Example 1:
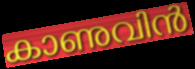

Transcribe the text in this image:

കാണുവിൻ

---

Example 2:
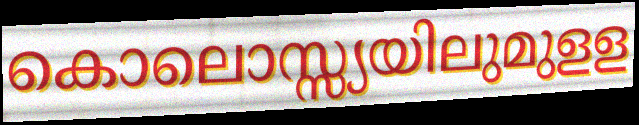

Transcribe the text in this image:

കൊലൊസ്സ്യയിലുമുളള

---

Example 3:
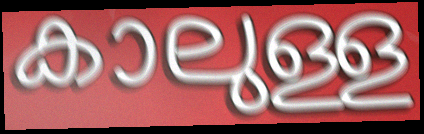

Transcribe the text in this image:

കാലുള്ള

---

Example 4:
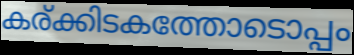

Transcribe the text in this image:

കര്ക്കിടകത്തോടൊപ്പം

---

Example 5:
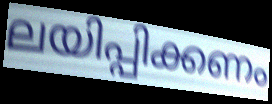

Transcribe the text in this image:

ലയിപ്പിക്കണം